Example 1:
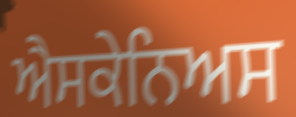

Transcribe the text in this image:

ਐਸਕੇਨਿਅਸ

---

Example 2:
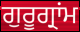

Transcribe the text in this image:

ਗੁਰੂਗ੍ਰਾਂਮ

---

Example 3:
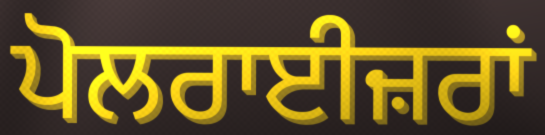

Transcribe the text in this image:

ਪੋਲਰਾਈਜ਼ਰਾਂ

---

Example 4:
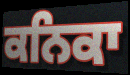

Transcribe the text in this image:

ਕਨਿਕਾ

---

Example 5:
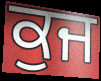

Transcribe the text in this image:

ਕੁਜ